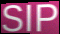
SIP